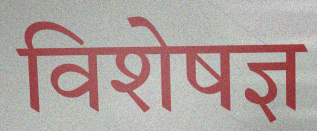
विशेषज्ञ